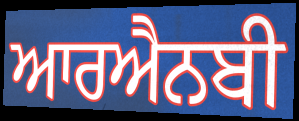
ਆਰਐਨਬੀ